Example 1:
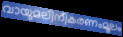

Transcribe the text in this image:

വായുമലിനീകരണംമൂലം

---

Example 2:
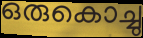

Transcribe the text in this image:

ഒരുകൊച്ചു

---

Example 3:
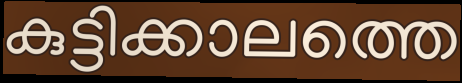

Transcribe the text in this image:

കുട്ടിക്കാലത്തെ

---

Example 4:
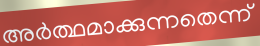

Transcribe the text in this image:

അർത്ഥമാക്കുന്നതെന്ന്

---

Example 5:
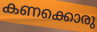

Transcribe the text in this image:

കണക്കൊരു